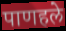
पाणहले